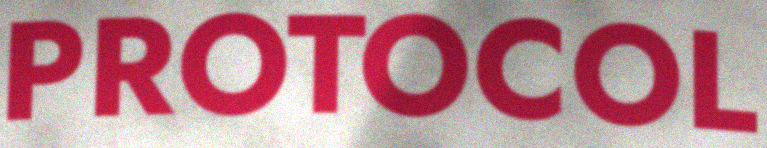
PROTOCOL